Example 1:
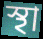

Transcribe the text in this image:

স্থা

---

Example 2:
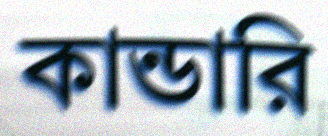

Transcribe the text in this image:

কান্ডারি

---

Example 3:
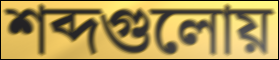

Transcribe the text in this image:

শব্দগুলোয়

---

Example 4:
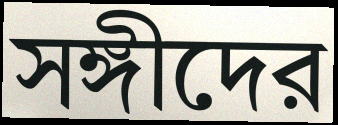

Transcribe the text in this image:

সঙ্গীদের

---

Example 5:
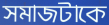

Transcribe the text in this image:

সমাজটাকে